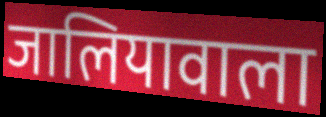
जालियावाला